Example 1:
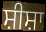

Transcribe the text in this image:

ਸ਼ੀਸ਼ਾ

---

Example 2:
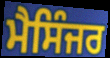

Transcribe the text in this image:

ਮੈਸਿੰਜਰ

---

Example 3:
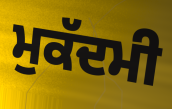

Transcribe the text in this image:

ਮੁਕੱਦਮੀ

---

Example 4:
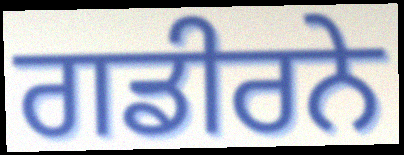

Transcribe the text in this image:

ਗਡੀਰਨੇ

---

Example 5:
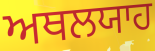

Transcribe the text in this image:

ਅਥਲਯਾਹ